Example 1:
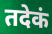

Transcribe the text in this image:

तदेकं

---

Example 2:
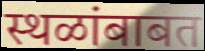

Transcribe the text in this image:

स्थळांबाबत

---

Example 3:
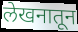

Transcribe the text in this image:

लेखनातून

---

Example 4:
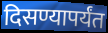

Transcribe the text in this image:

दिसण्यापर्यंत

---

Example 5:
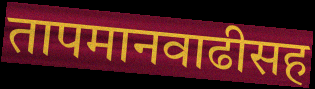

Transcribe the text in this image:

तापमानवाढीसह